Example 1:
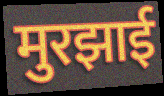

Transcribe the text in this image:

मुरझाई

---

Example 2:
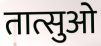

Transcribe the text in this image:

तात्सुओ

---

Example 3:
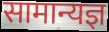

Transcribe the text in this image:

सामान्यज्ञ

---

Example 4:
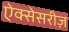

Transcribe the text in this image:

ऐक्सेसरीज़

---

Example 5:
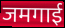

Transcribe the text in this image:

जमगाई